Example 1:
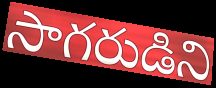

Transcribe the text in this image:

సాగరుడిని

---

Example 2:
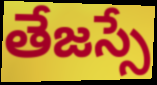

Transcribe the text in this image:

తేజస్సే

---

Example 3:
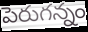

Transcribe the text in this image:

పెరుగన్నం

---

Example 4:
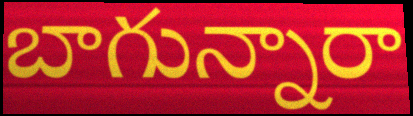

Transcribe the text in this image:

బాగున్నారా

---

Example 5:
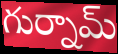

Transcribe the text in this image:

గుర్నామ్